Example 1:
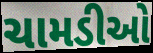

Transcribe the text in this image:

ચામડીઓ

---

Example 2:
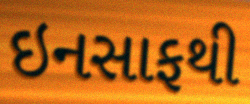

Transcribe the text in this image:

ઇનસાફથી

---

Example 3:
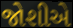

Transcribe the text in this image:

જોશીએ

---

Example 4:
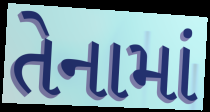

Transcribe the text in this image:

તેનામાં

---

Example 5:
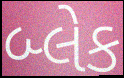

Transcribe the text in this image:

બ્લેક